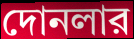
দোনলার